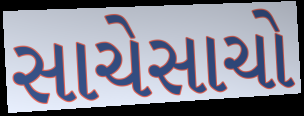
સાચેસાચો